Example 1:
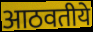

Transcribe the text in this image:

आठवतीये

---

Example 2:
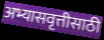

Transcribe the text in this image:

अभ्यासवृत्तीसाठी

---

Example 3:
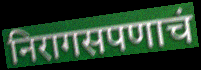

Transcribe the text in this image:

निरागसपणाचं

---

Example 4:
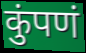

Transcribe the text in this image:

कुंपणं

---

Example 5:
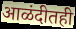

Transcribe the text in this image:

आळंदीतही